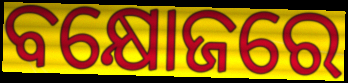
ବକ୍ଷୋଜରେ